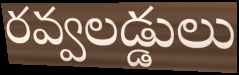
రవ్వలడ్డులు